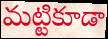
మట్టికూడా